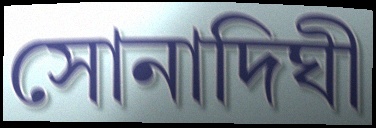
সোনাদিঘী